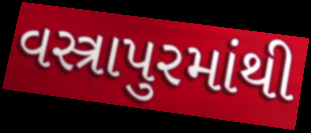
વસ્ત્રાપુરમાંથી